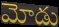
మోడు